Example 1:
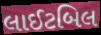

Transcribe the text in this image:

લાઈટબિલ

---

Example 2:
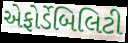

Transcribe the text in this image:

એફોર્ડેબિલિટી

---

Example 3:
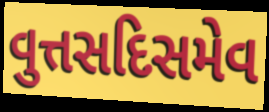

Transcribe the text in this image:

વુત્તસદિસમેવ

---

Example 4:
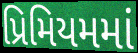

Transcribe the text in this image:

પ્રિમિયમમાં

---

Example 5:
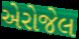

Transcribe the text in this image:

એરોજેલ